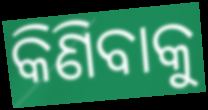
କିଣିବାକୁ